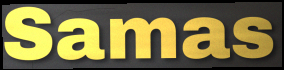
Samas